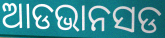
ଆଡଭାନସଡ